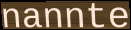
nannte